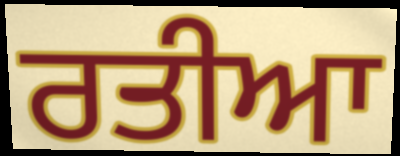
ਰਤੀਆ